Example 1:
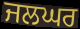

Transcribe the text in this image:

ਜਲਘਰ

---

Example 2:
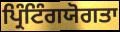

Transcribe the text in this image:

ਪ੍ਰਿੰਟਿੰਗਯੋਗਤਾ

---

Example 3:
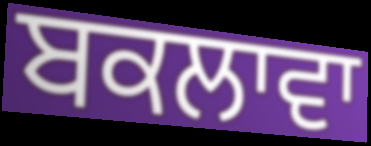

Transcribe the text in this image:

ਬਕਲਾਵਾ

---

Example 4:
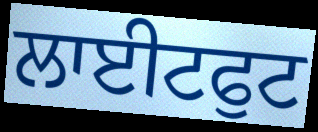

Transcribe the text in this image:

ਲਾਈਟਫੁਟ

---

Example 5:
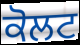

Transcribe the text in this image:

ਕੋਲਟ